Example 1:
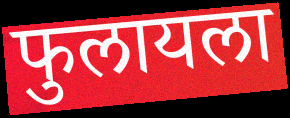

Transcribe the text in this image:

फुलायला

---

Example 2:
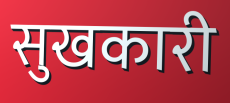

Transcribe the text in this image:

सुखकारी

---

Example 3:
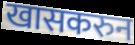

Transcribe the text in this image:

खासकरुन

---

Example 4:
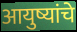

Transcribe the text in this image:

आयुष्यांचे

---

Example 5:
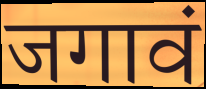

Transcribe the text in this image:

जगावं